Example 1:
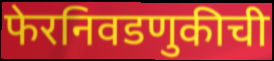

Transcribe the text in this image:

फेरनिवडणुकीची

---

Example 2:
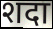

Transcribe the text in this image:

शदा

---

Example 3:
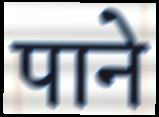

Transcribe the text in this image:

पाने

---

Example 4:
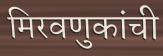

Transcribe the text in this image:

मिरवणुकांची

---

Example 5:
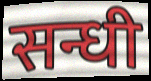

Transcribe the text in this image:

सन्धी